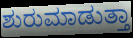
ಶುರುಮಾಡುತ್ತಾ